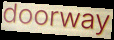
doorway